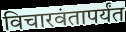
विचारवंतापर्यंत